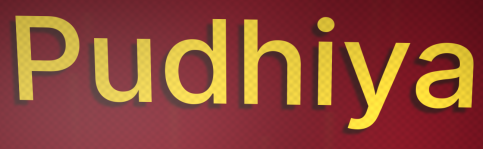
Pudhiya